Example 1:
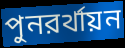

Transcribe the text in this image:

পুনরর্থায়ন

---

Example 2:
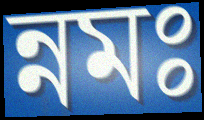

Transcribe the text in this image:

ন্নমঃ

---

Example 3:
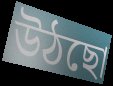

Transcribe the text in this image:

উঠছো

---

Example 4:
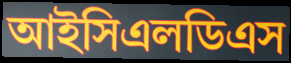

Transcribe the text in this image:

আইসিএলডিএস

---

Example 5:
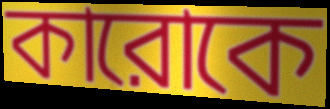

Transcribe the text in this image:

কারোকে